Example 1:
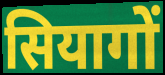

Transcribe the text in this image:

सियागों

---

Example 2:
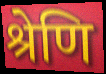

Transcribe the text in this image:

श्रेणि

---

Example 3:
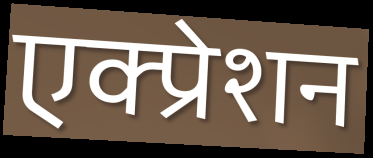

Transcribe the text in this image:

एक्प्रेशन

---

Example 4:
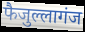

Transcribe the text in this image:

फैजुल्लागंज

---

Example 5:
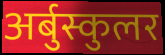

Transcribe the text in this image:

अर्बुस्कुलर